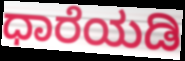
ಧಾರೆಯಡಿ